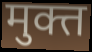
मुक्त